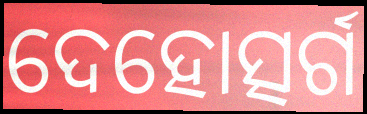
ଦେହୋତ୍ସର୍ଗ